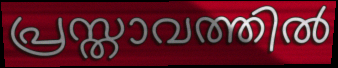
പ്രസ്താവത്തിൽ